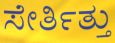
ಸೇರ್ತಿತ್ತು